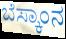
ಬೆಸ್ಕಾಂನ